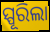
ସ୍ପୂରିଲା